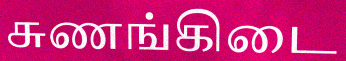
சுணங்கிடை